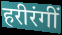
हरीरंगीं